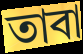
তাবা